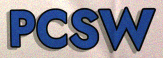
PCSW